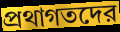
প্রথাগতদের